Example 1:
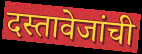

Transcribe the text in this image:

दस्तावेजांची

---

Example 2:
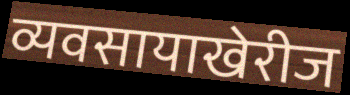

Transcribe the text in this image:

व्यवसायाखेरीज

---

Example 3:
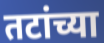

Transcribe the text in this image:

तटांच्या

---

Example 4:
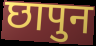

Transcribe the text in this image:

छापुन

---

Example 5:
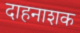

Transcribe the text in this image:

दाहनाशक